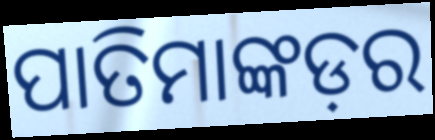
ପାତିମାଙ୍କଡ଼ର